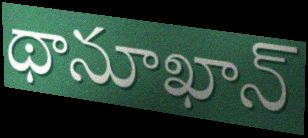
థానూఖాన్